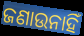
ଜଣାଉନାହିଁ